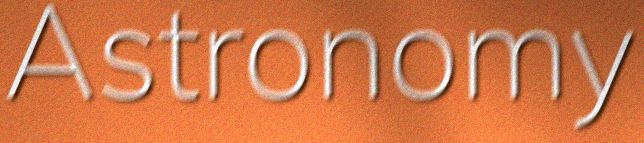
Astronomy